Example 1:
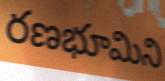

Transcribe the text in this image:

రణభూమిని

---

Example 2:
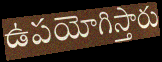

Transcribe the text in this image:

ఉపయోగిస్తారు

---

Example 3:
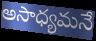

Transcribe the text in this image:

అసాధ్యమనే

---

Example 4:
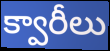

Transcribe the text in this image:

క్వారీలు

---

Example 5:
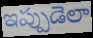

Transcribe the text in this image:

ఇప్పుడెలా